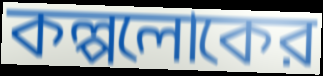
কল্পলোকের